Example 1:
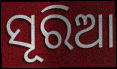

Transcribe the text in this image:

ସୂରିଆ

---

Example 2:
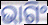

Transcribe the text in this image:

ଭାଗିଂ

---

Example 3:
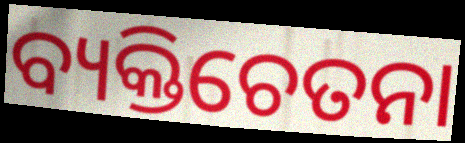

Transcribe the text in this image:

ବ୍ୟକ୍ତିଚେତନା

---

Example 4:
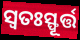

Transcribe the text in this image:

ସ୍ୱତଃସ୍ଫୂର୍ତ୍ତ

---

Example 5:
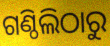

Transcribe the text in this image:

ଗଣ୍ଠିଲିଠାରୁ